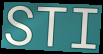
STI